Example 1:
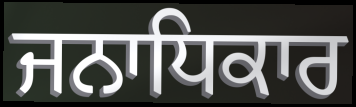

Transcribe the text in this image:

ਜਨਾਧਿਕਾਰ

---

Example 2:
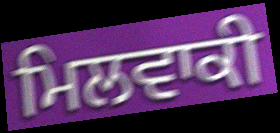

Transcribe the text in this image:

ਮਿਲਵਾਕੀ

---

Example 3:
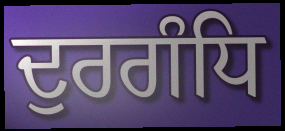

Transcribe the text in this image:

ਦੁਰਗੰਧਿ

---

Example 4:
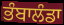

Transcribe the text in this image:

ਭੰਬਾਲੰਡਾ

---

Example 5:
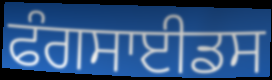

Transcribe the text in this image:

ਫੰਗਸਾਈਡਸ